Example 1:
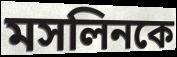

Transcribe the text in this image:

মসলিনকে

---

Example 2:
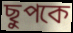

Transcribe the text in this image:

ছুপকে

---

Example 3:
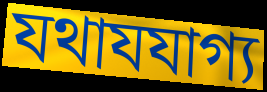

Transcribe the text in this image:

যথাযযাগ্য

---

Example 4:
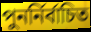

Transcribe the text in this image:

পুনর্নির্বাচিত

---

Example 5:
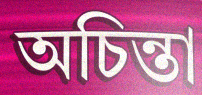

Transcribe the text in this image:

অচিন্তা